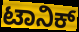
ಟಾನಿಕ್